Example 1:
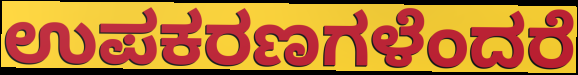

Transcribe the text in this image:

ಉಪಕರಣಗಳೆಂದರೆ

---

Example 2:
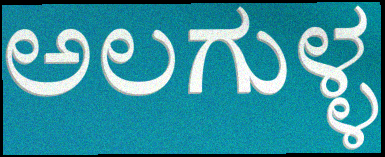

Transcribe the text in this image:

ಅಲಗುಳ್ಳ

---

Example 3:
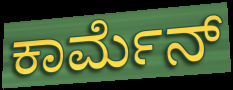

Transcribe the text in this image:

ಕಾರ್ಮೆನ್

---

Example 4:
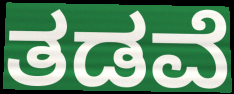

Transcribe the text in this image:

ತಡವೆ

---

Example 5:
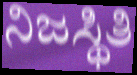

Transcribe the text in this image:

ನಿಜಸ್ಥಿತಿ